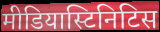
मीडियास्टिनिटिस